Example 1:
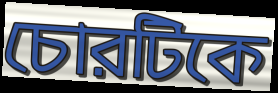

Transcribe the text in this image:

চোরটিকে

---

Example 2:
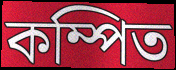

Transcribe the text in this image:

কম্পিত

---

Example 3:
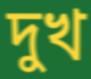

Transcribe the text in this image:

দুখ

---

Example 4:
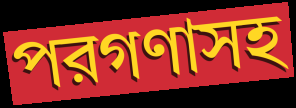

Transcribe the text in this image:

পরগণাসহ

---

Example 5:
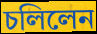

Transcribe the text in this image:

চলিলেন